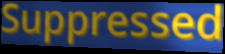
Suppressed